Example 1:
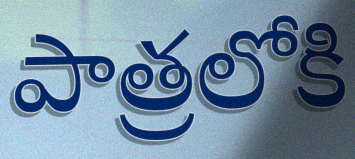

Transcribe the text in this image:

పాత్రలోకి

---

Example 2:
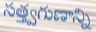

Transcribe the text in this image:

సత్త్వగుణాన్ని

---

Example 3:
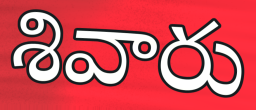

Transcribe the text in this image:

శివారు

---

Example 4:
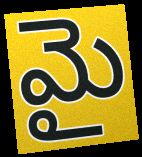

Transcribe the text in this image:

మై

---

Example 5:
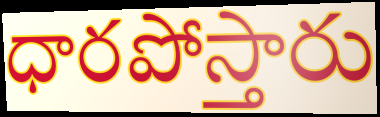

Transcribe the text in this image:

ధారపోస్తారు